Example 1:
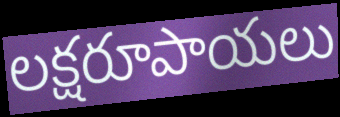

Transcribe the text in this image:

లక్షరూపాయలు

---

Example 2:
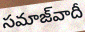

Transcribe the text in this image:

సమాజ్‌వాదీ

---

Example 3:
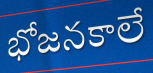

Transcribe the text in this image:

భోజనకాలే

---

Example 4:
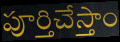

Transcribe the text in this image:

పూర్తిచేస్తాం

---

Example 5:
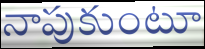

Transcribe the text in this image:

నాపుకుంటూ